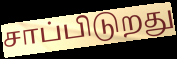
சாப்பிடுறது